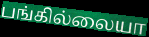
பங்கில்லையா